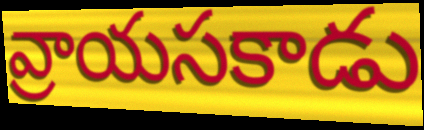
వ్రాయసకాడు